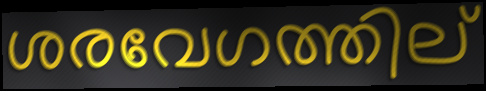
ശരവേഗത്തില്